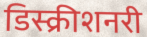
डिस्क्रीशनरी